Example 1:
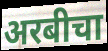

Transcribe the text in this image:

अरबीचा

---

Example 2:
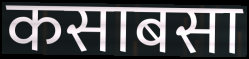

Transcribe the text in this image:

कसाबसा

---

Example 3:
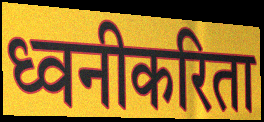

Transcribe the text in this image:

ध्वनीकरिता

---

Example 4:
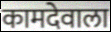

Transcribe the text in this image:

कामदेवाला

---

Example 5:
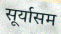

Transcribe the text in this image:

सूर्यासम